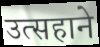
उत्सहाने